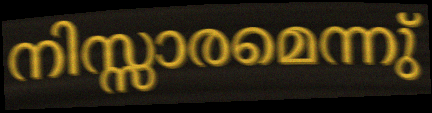
നിസ്സാരമെന്നു്